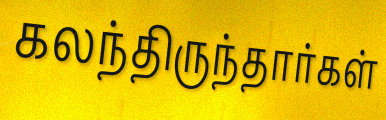
கலந்திருந்தார்கள்